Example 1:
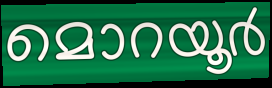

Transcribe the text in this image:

മൊറയൂർ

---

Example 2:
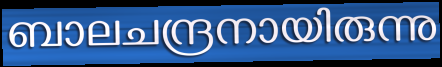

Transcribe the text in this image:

ബാലചന്ദ്രനായിരുന്നു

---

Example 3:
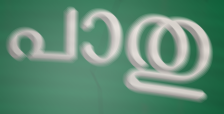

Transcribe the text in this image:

പാതു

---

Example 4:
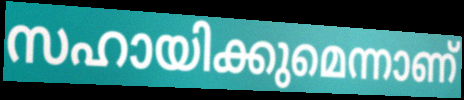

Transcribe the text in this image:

സഹായിക്കുമെന്നാണ്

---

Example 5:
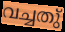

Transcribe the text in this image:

വച്ചതു്